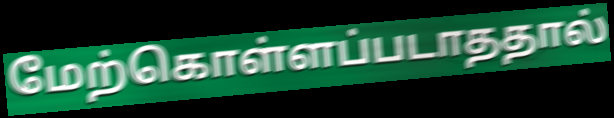
மேற்கொள்ளப்படாததால்